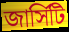
জার্সিটি